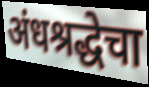
अंधश्रद्धेचा